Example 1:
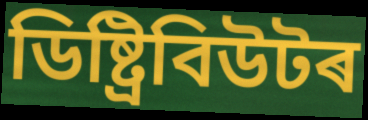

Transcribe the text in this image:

ডিষ্ট্ৰিবিউটৰ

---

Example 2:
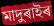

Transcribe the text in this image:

মাদুৰাইৰ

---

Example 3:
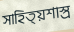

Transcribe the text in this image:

সাহিত্য়শাস্ত্ৰ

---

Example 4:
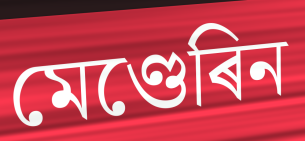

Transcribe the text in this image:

মেণ্ডেৰিন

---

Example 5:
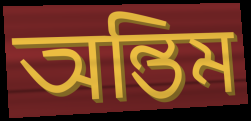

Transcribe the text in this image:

অন্তিম